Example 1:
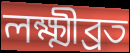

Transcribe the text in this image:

লক্ষ্মীব্রত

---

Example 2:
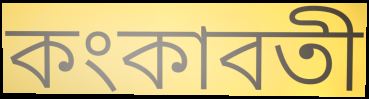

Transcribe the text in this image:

কংকাবতী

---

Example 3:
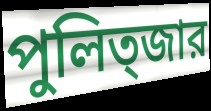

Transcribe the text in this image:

পুলিত্জার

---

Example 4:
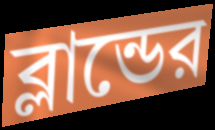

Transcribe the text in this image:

ব্লান্ডের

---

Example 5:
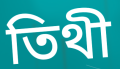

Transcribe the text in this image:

তিথী